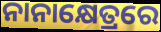
ନାନାକ୍ଷେତ୍ରରେ